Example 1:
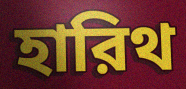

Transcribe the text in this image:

হারিথ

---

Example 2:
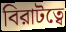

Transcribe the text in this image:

বিরাটত্বে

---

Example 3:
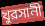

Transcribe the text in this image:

খুরসানী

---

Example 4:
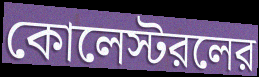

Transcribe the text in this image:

কোলেস্টরলের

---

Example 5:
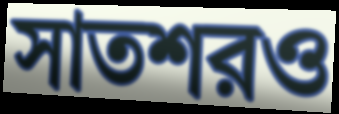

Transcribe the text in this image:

সাতশরও